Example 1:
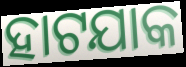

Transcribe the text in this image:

ହାଟଯାକ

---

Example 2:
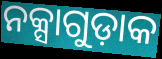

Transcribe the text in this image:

ନକ୍ସାଗୁଡ଼ାକ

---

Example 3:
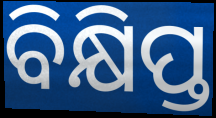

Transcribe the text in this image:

ବିକ୍ଷିପ୍ତ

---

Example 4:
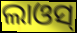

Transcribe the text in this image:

ଲାଓସ୍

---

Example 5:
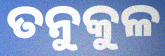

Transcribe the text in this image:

ତନୁକୁଳ